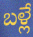
బళ్లే